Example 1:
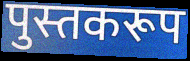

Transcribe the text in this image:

पुस्तकरूप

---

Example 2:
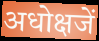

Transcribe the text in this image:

अधोक्षजें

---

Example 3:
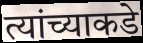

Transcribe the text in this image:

त्यांच्याकडे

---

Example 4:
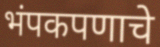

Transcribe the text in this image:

भंपकपणाचे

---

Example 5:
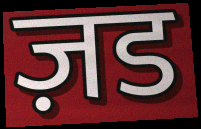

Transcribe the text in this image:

ज़ड